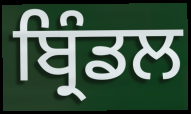
ਬ੍ਰਿੰਡਲ